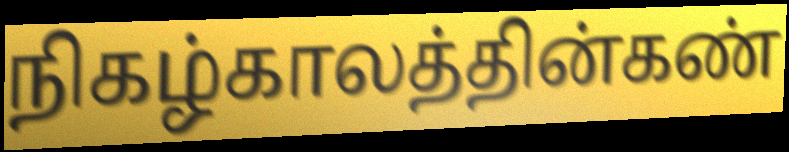
நிகழ்காலத்தின்கண்